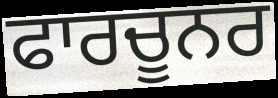
ਫਾਰਚੂਨਰ